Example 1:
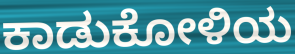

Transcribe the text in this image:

ಕಾಡುಕೋಳಿಯ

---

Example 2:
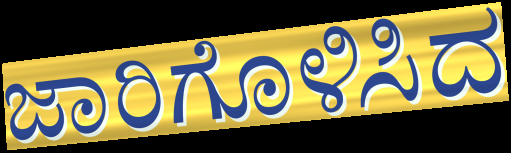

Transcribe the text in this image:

ಜಾರಿಗೊಳಿಸಿದ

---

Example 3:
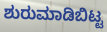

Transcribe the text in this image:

ಶುರುಮಾಡಿಬಿಟ್ಟ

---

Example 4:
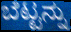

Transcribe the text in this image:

ಬೆಟ್ಟನ್ನು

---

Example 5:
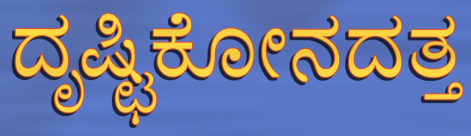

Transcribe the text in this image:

ದೃಷ್ಟಿಕೋನದತ್ತ